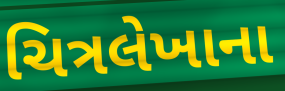
ચિત્રલેખાના